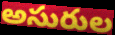
అసురుల